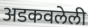
अडकवलेली